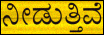
ನೀಡುತ್ತಿವೆ